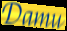
Damu